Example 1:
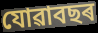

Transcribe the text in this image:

যোৱাবছৰ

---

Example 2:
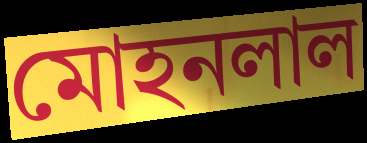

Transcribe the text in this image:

মোহনলাল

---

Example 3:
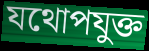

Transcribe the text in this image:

যথোপযুক্ত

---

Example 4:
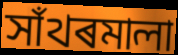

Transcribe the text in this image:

সাঁথৰমালা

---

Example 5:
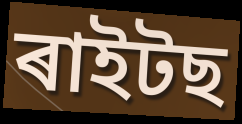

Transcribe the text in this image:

ৰাইটছ